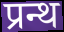
प्रन्थ